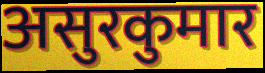
असुरकुमार